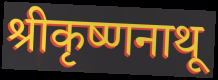
श्रीकृष्णनाथू